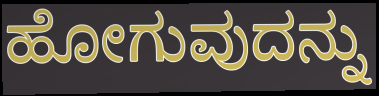
ಹೋಗುವುದನ್ನು